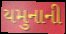
યમુનાની